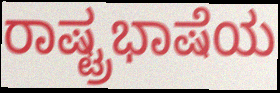
ರಾಷ್ಟ್ರಭಾಷೆಯ